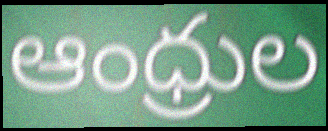
ఆంధ్రుల